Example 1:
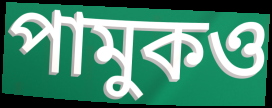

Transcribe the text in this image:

পামুকও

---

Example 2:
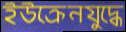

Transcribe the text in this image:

ইউক্রেনযুদ্ধে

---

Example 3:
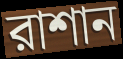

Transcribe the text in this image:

রাশান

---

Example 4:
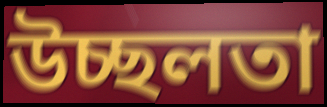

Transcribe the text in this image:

উচ্ছলতা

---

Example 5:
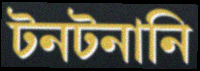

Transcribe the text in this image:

টনটনানি